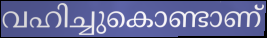
വഹിച്ചുകൊണ്ടാണ്